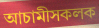
আচামীসকলক